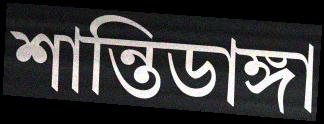
শান্তিডাঙ্গা